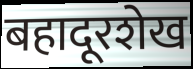
बहादूरशेख